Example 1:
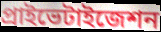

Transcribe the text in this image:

প্রাইভেটাইজেশন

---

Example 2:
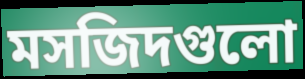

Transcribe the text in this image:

মসজিদগুলো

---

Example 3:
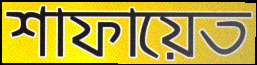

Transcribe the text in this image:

শাফায়েত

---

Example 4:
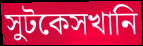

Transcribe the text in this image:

সুটকেসখানি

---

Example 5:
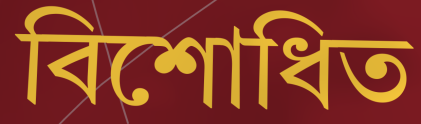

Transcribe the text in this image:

বিশোধিত